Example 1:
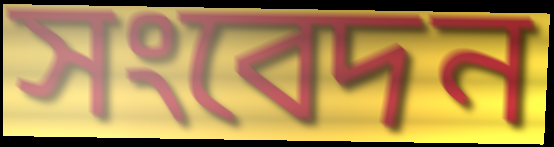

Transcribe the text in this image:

সংবেদন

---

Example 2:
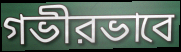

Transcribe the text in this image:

গভীরভাবে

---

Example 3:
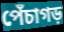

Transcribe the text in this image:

পেঁচাগড়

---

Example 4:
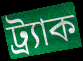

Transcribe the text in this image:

ট্র্যাক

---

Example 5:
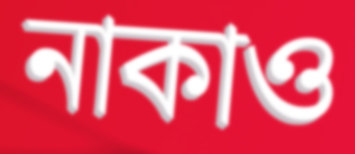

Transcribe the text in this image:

নাকাও